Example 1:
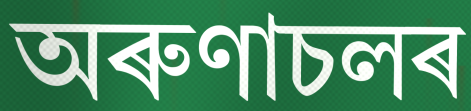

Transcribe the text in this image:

অৰুণাচলৰ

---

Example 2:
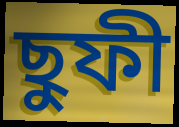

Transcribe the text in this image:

ছুফী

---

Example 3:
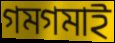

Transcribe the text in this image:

গমগমাই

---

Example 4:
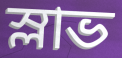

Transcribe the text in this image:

স্লাভ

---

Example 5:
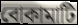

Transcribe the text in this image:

বোকামাটি